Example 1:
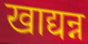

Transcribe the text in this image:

खाद्यन्न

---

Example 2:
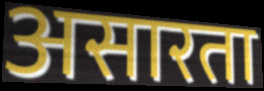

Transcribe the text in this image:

असारता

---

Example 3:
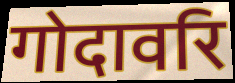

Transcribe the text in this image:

गोदावरि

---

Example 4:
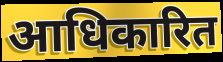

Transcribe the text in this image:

आधिकारित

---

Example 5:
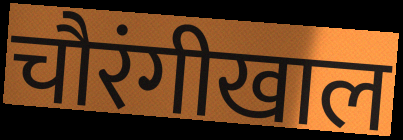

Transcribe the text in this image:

चौरंगीखाल